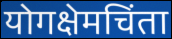
योगक्षेमचिंता